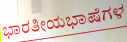
ಭಾರತೀಯಭಾಷೆಗಳ